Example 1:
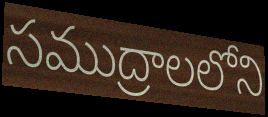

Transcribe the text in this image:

సముద్రాలలోని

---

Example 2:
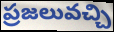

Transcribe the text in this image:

ప్రజలువచ్చి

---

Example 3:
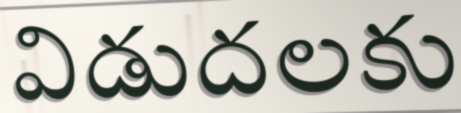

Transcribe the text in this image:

విడుదలకు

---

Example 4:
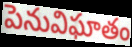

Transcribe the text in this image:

పెనువిఘాతం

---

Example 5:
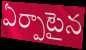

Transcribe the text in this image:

ఏర్పాటైన